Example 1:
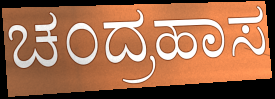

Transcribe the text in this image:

ಚಂದ್ರಹಾಸ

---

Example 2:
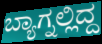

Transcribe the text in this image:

ಬ್ಯಾಗ್ನಲ್ಲಿದ್ದ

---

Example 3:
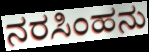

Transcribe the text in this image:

ನರಸಿಂಹನು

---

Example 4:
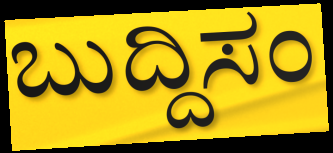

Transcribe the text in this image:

ಬುದ್ದಿಸಂ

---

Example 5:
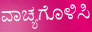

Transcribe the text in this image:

ವಾಚ್ಯಗೊಳಿಸಿ